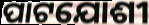
ପାଟଯୋଶୀ